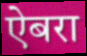
ऐबरा